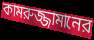
কামরুজ্জামানের